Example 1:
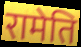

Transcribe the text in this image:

रामेति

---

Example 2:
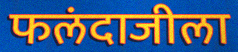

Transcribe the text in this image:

फलंदाजीला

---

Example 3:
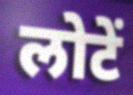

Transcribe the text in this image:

लोटें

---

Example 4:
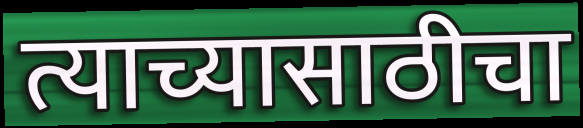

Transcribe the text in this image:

त्याच्यासाठीचा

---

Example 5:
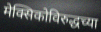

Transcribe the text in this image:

मेक्सिकोविरुद्धच्या